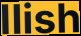
Ilish